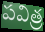
పవిత్ర